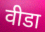
वीडा